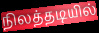
நிலத்தடியில்